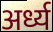
अर्ध्य